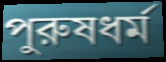
পুরুষধর্ম